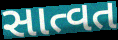
સાત્વત